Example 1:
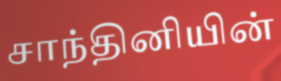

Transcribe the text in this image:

சாந்தினியின்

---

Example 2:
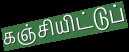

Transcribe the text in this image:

கஞ்சியிட்டுப்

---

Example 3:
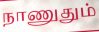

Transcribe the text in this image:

நாணுதும்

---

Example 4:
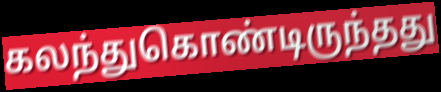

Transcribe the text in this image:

கலந்துகொண்டிருந்தது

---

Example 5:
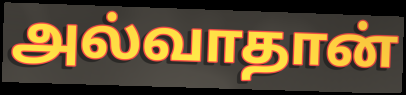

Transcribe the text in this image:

அல்வாதான்